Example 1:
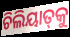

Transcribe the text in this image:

ଚିଲିୟାତ୍‍କୁ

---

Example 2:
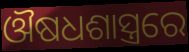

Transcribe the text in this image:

ଔଷଧଶାସ୍ତ୍ରରେ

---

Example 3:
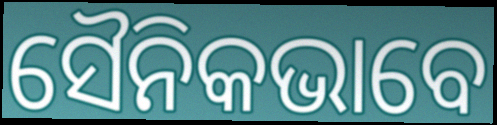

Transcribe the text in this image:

ସୈନିକଭାବେ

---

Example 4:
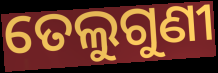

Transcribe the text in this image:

ତେଲୁଗୁଣୀ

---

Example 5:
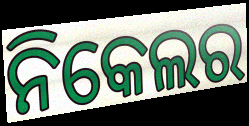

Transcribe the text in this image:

ନିକେଲର